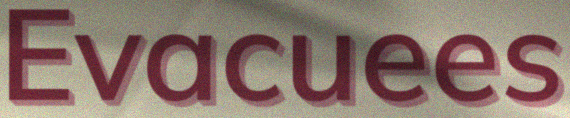
Evacuees